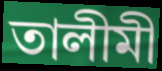
তালীমী